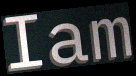
Iam